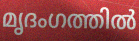
മൃദംഗത്തിൽ